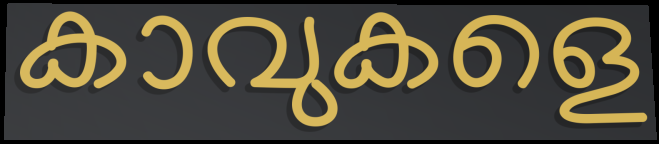
കാവുകളെ